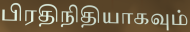
பிரதிநிதியாகவும்